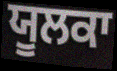
ਯੂਲਕਾ